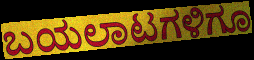
ಬಯಲಾಟಗಳಿಗೂ